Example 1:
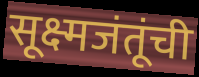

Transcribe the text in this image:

सूक्ष्मजंतूंची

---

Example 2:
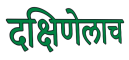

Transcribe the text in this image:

दक्षिणेलाच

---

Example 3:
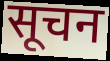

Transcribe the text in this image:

सूचन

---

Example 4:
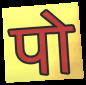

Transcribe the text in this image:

पो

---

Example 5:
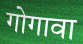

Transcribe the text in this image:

गोगावा